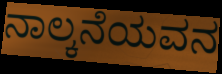
ನಾಲ್ಕನೆಯವನ